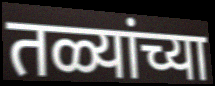
तळ्यांच्या